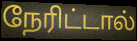
நேரிட்டால்